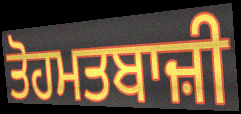
ਤੋਹਮਤਬਾਜ਼ੀ